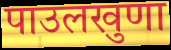
पाउलखुणा